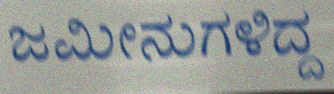
ಜಮೀನುಗಳಿದ್ದ